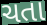
ચતા